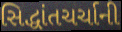
સિદ્ધાંતચર્ચાની